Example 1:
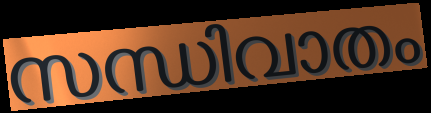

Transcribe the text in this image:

സന്ധിവാതം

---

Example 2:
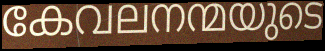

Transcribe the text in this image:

കേവലനന്മയുടെ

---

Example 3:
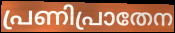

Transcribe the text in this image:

പ്രണിപ്രാതേന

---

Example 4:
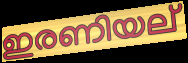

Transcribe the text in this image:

ഇരണിയല്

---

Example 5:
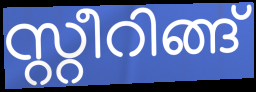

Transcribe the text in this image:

സ്റ്റീറിങ്ങ്